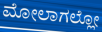
ಮೋಲಾಗಲ್ಲೋ